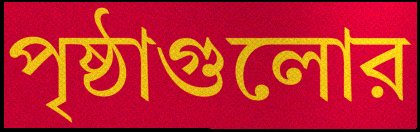
পৃষ্ঠাগুলোর